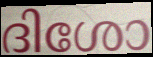
ദിശോ